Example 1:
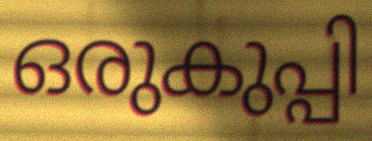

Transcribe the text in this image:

ഒരുകുപ്പി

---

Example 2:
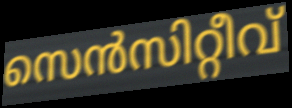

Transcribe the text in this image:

സെൻസിറ്റീവ്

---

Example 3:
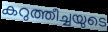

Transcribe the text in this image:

കറുത്തീച്ചയുടെ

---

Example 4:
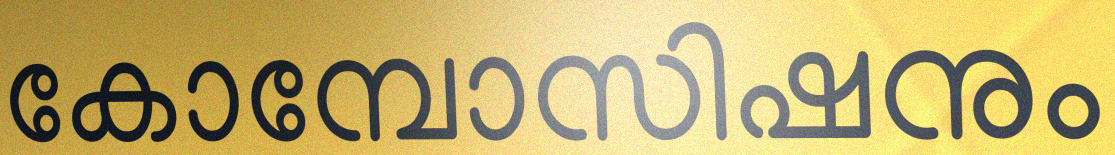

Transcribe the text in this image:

കോമ്പോസിഷനും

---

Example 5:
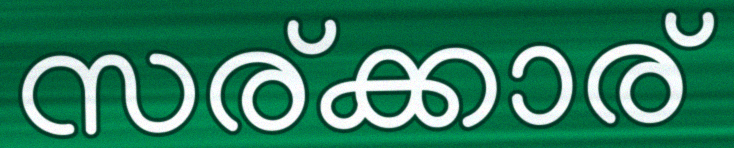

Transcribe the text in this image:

സര്ക്കാര്